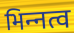
भिन्नत्व